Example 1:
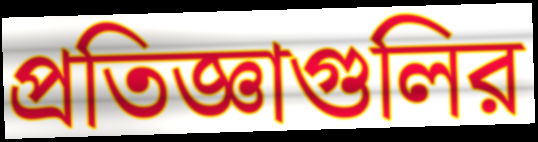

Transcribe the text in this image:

প্রতিজ্ঞাগুলির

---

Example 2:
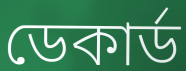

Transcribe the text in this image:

ডেকার্ড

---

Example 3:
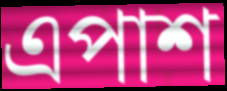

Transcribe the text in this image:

এপাশ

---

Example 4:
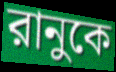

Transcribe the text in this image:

রানুকে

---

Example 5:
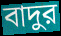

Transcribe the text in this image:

বাদুর